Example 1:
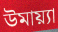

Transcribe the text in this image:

উমায়্যা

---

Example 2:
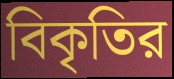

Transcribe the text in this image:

বিকৃতির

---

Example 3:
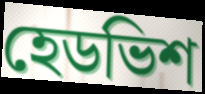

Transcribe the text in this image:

হেডভিশ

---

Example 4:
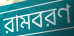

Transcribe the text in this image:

রামবরণ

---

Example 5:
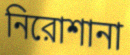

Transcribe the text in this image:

নিরোশানা